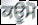
ਕਊਮੋ